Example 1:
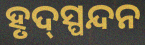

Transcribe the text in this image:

ହୃଦ୍‍ସ୍ପନ୍ଦନ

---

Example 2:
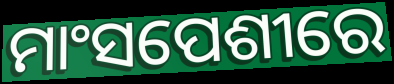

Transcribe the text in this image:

ମାଂସପେଶୀରେ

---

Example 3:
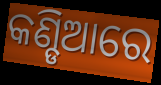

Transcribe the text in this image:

କଣ୍ଡିଆରେ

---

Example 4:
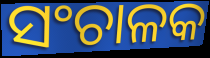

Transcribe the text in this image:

ସଂଚାଳକ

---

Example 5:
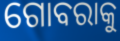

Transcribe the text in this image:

ଗୋବରାକୁ